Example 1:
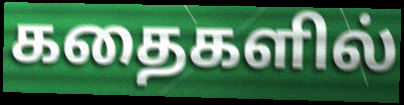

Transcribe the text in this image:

கதைகளில்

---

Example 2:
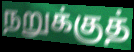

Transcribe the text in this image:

நறுக்குத்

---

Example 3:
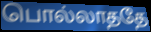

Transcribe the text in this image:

பொல்லாததே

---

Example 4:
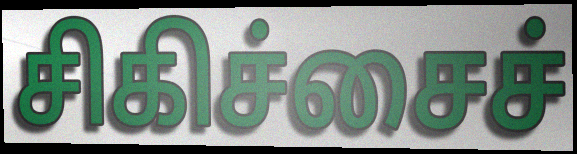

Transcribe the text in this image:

சிகிச்சைச்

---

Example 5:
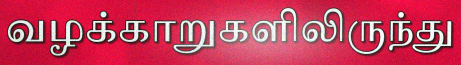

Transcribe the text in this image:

வழக்காறுகளிலிருந்து